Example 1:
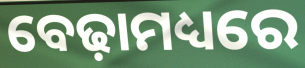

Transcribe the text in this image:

ବେଢ଼ାମଧ୍ୟରେ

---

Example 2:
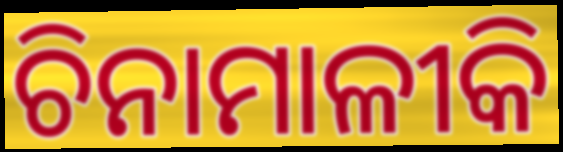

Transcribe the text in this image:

ଚିନାମାଳୀକି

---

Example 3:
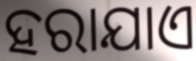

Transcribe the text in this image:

ହରାଯାଏ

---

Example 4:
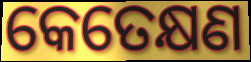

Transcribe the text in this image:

କେତେକ୍ଷଣ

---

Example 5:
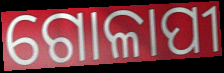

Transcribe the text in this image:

ଗୋଳାପୀ